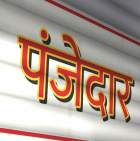
पंजेदार